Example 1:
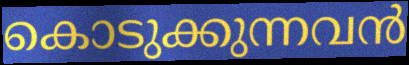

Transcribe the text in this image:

കൊടുക്കുന്നവൻ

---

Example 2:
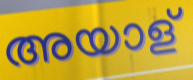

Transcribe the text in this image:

അയാള്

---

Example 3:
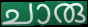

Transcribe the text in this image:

ചാരു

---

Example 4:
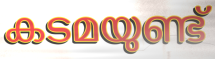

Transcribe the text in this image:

കടമയുണ്ട്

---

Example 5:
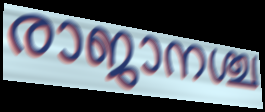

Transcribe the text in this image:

രാജാനശ്ച